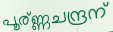
പൂര്ണ്ണചന്ദ്രന്